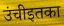
उंचीइतका